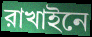
রাখাইনে